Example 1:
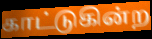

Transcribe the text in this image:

காட்டுகின்ற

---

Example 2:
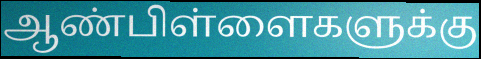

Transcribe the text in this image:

ஆண்பிள்ளைகளுக்கு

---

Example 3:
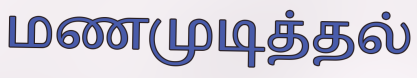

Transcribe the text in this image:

மணமுடித்தல்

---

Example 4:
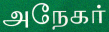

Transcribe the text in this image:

அநேகர்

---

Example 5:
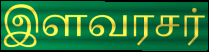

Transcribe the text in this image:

இளவரசர்